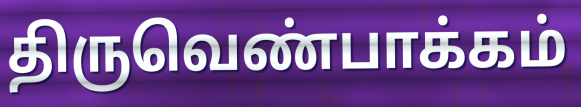
திருவெண்பாக்கம்